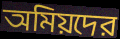
অমিয়দের